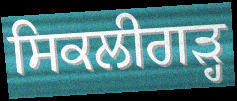
ਸਿਕਲੀਗੜ੍ਹ